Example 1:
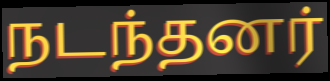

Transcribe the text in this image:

நடந்தனர்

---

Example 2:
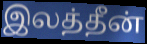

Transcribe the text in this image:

இலத்தீன்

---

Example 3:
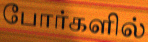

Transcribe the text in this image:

போர்களில்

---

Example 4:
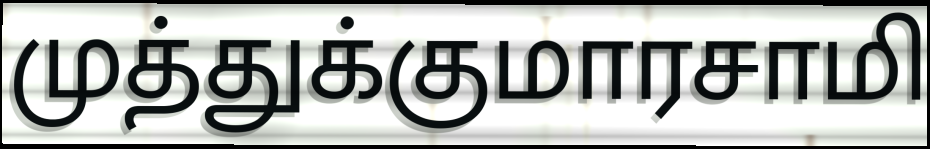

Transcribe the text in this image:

முத்துக்குமாரசாமி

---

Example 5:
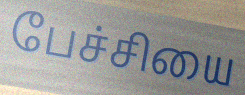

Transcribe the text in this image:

பேச்சியை